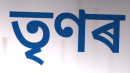
তৃণৰ